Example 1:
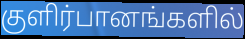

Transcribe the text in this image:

குளிர்பானங்களில்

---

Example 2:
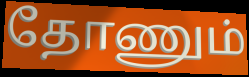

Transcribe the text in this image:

தோணும்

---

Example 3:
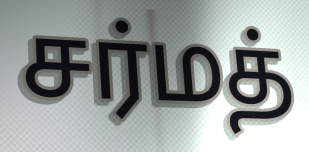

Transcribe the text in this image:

சர்மத்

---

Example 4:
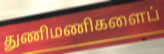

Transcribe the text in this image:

துணிமணிகளைப்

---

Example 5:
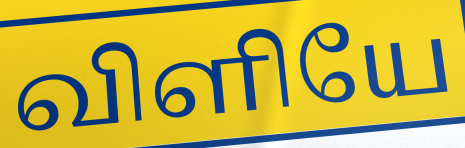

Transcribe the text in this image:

விளியே